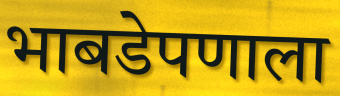
भाबडेपणाला